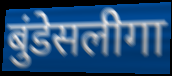
बुंडेसलीगा